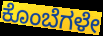
ಕೊಂಬೆಗಳೇ